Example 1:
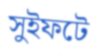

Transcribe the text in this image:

সুইফটে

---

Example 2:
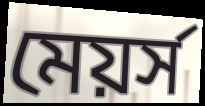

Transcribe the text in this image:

মেয়র্স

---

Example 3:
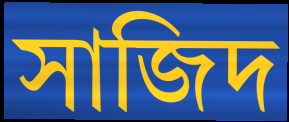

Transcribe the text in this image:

সাজিদ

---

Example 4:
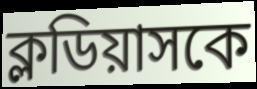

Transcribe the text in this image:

ক্লডিয়াসকে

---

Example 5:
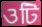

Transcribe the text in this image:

ওটি